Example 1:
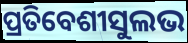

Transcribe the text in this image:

ପ୍ରତିବେଶୀସୁଲଭ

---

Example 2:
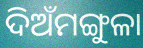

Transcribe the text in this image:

ଦିଅଁମଙ୍ଗୁଳା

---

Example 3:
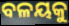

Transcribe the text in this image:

ବଳୟକୁ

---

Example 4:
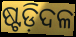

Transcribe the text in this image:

ଷ୍ଟଡ଼ିଦଳ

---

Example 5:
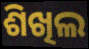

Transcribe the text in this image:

ଶିଖିଲ